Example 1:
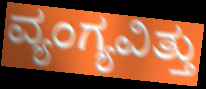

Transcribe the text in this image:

ವ್ಯಂಗ್ಯವಿತ್ತು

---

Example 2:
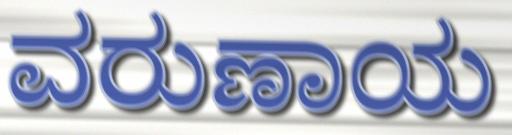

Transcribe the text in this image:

ವರುಣಾಯ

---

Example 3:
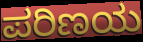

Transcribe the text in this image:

ಪರಿಣಯ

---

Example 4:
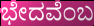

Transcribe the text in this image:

ಭೇದವೆಂಬ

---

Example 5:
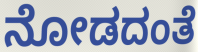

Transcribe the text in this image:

ನೋಡದಂತೆ